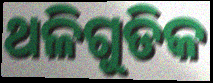
ଥଳିଗୁଡିକ